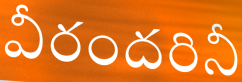
వీరందరినీ